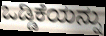
ಒಡ್ಡಿಕೆಯನ್ನು